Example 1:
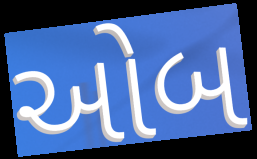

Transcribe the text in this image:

ઓબ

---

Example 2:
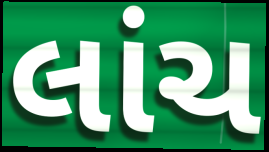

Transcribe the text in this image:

લાંચ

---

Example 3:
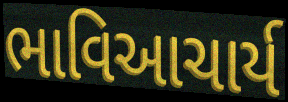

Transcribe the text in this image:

ભાવિઆચાર્ય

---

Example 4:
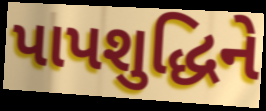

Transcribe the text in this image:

પાપશુદ્ધિને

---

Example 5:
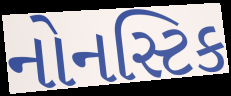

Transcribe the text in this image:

નોનસ્ટિક